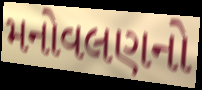
મનોવલણનો